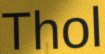
Thol